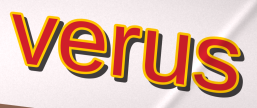
verus